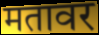
मतावर